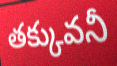
తక్కువనీ